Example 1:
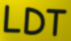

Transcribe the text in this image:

LDT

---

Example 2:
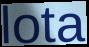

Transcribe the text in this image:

lota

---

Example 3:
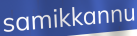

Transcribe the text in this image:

samikkannu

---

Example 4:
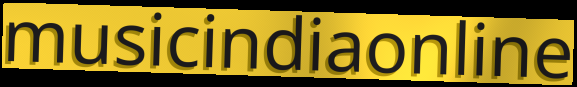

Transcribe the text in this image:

musicindiaonline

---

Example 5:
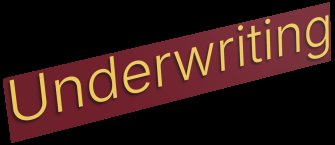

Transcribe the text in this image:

Underwriting